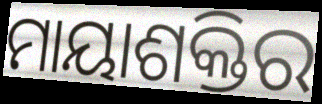
ମାୟାଶକ୍ତିର